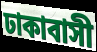
ঢাকাবাসী